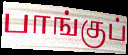
பாங்குப்